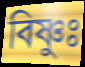
বিষ্ণুঃ